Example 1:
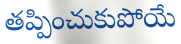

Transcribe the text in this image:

తప్పించుకుపోయే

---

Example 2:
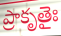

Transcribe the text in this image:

ప్రాకృతైః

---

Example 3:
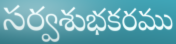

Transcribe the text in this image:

సర్వశుభకరము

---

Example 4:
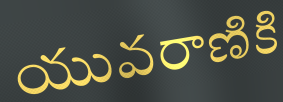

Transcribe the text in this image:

యువరాణికి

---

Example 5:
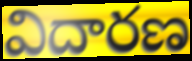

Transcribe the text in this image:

విదారణ